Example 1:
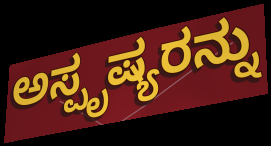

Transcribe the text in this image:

ಅಸ್ಪೃಷ್ಯರನ್ನು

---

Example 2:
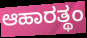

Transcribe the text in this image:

ಆಹಾರತ್ಥಂ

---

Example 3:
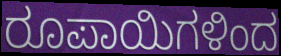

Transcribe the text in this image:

ರೂಪಾಯಿಗಳಿಂದ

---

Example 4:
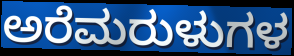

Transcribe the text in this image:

ಅರೆಮರುಳುಗಳ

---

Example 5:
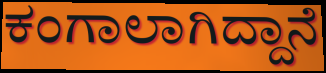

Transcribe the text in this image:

ಕಂಗಾಲಾಗಿದ್ದಾನೆ